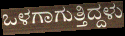
ಒಳಗಾಗುತ್ತಿದ್ದಳು